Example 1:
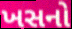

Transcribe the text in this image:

ખસનો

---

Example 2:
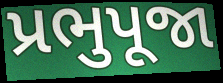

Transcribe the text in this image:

પ્રભુપૂજા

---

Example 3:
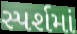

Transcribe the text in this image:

સ્પર્શમાં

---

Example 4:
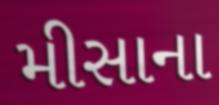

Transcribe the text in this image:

મીસાના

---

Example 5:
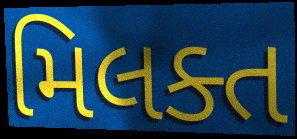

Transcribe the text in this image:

મિલક્ત